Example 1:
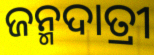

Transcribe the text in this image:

ଜନ୍ମଦାତ୍ରୀ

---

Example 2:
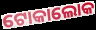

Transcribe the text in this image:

ଟୋକାଲୋକ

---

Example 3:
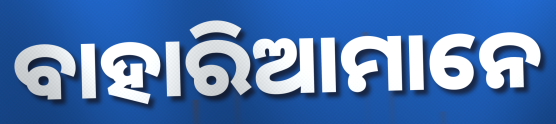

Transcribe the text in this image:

ବାହାରିଆମାନେ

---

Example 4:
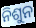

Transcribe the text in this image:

ନିଶୁନ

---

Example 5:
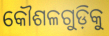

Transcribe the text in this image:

କୌଶଳଗୁଡ଼ିକୁ